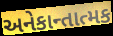
અનેકાન્તાત્મક